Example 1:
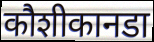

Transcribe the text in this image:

कौशीकानडा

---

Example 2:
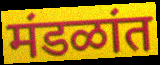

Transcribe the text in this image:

मंडळांत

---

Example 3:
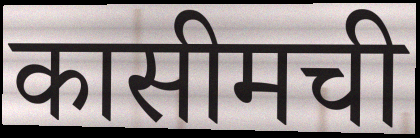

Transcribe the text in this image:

कासीमची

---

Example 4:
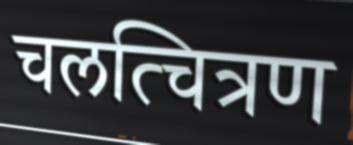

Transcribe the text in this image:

चलत्चित्रण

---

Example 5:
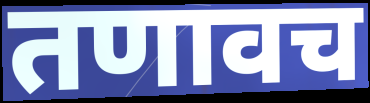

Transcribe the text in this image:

तणावच